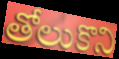
తోలుకొని